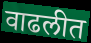
वाढलीत